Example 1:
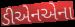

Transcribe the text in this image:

ડીએનએના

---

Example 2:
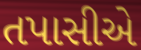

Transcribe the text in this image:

તપાસીએ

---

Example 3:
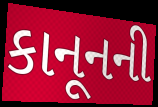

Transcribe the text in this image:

કાનૂનની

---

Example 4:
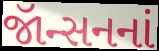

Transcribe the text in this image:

જૉન્સનનાં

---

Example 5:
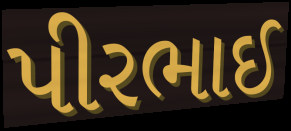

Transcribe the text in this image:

પીરભાઈ